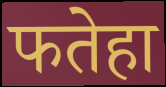
फतेहा